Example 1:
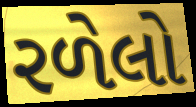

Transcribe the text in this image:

રળેલો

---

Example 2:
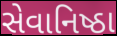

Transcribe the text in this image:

સેવાનિષ્ઠા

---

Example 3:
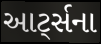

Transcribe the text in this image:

આર્ટ્સના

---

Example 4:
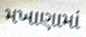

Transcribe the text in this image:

મખાણામાં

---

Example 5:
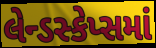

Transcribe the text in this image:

લેન્ડસ્કેપ્સમાં